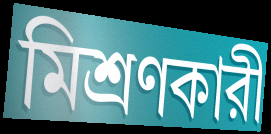
মিশ্রণকারী